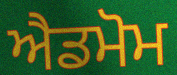
ਐਡਮੋਮ